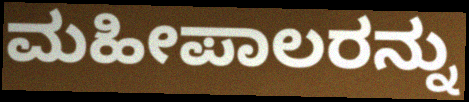
ಮಹೀಪಾಲರನ್ನು